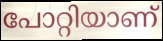
പോറ്റിയാണ്